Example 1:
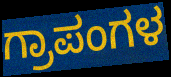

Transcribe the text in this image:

ಗ್ರಾಪಂಗಳ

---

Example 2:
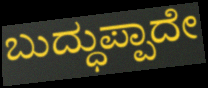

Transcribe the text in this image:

ಬುದ್ಧುಪ್ಪಾದೇ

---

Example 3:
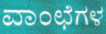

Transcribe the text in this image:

ವಾಂಛೆಗಳ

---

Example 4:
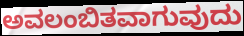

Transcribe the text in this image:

ಅವಲಂಬಿತವಾಗುವುದು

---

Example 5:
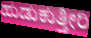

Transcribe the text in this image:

ಹುಡುಕುತ್ತೀರಿ